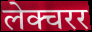
लेक्‍चरर